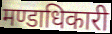
मण्डाधिकारी